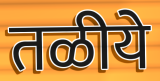
तळीये